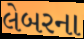
લેબરના